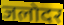
जलोदर